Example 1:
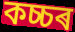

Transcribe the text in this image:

কচ্চৰ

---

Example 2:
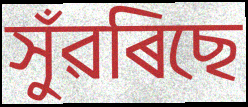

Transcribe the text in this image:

সুঁৱৰিছে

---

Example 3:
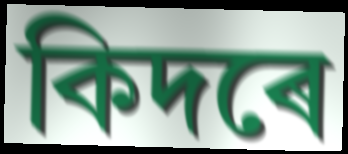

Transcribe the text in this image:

কিদৰে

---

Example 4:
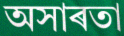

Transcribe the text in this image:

অসাৰতা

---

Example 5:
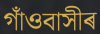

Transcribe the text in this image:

গাঁওবাসীৰ